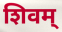
शिवम्